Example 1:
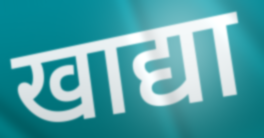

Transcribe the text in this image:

खाद्या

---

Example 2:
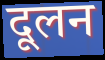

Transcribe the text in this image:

दूलन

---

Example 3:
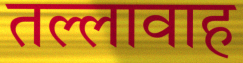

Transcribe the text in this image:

तल्लावाह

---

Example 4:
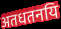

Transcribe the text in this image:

अतधतनयि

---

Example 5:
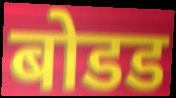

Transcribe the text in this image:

बोडड